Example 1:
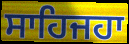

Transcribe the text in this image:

ਸਾਹਿਜਹਾ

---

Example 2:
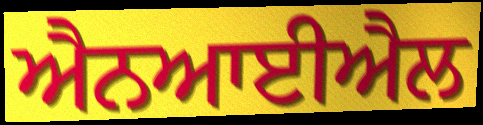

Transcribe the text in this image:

ਐਨਆਈਐਲ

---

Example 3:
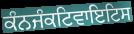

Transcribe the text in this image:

ਕੰਨਜੰਕਟਿਵਾਇਟਿਸ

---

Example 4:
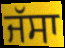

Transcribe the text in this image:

ਜੱਸਾ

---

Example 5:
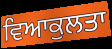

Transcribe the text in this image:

ਵਿਆਕੁਲਤਾ